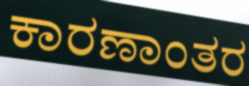
ಕಾರಣಾಂತರ